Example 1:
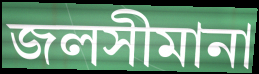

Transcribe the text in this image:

জলসীমানা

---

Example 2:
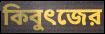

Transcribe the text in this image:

কিবুৎজের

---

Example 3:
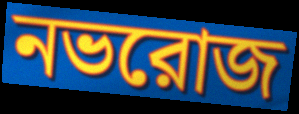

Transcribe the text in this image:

নভরোজ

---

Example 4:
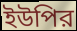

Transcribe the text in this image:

ইউপির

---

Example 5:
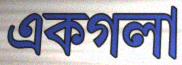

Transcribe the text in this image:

একগলা